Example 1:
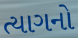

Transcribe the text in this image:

ત્યાગનો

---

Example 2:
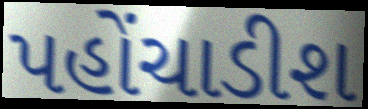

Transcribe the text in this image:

પહોંચાડીશ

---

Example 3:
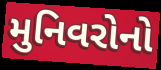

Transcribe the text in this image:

મુનિવરોનો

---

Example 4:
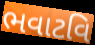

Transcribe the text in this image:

ભવાટવિ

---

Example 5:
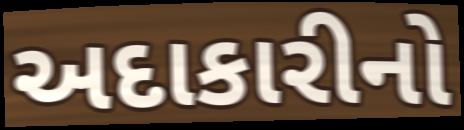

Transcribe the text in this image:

અદાકારીનો